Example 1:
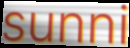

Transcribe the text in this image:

sunni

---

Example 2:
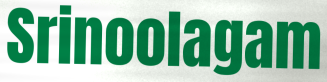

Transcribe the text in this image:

Srinoolagam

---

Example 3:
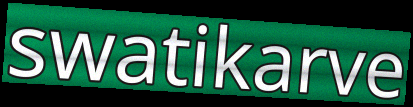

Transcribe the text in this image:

swatikarve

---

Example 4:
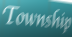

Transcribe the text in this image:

Township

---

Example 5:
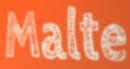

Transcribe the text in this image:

Malte